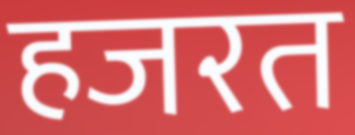
हजरत